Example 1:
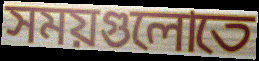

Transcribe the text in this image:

সময়গুলোতে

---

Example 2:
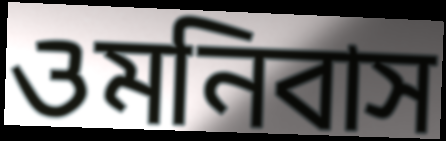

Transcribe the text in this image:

ওমনিবাস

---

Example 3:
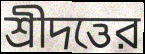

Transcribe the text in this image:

শ্রীদত্তের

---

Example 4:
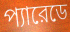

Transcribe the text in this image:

প্যারেডে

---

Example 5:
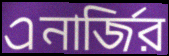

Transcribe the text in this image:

এনার্জির